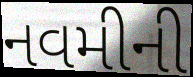
નવમીની